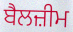
ਬੈਲਜ਼ੀਮ